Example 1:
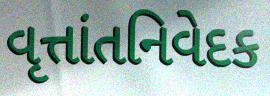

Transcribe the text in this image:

વૃત્તાંતનિવેદક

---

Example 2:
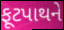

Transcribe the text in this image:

ફૂટપાથને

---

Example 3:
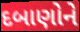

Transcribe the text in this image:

દબાણોને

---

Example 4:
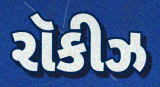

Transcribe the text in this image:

રૉકીઝ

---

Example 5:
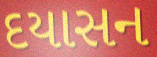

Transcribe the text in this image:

દયાસન